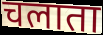
चलाता